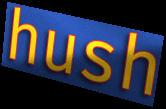
hush